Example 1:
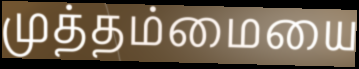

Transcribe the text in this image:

முத்தம்மையை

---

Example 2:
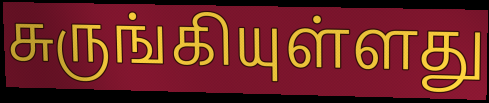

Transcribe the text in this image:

சுருங்கியுள்ளது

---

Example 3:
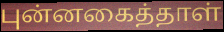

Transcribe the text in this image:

புன்னகைத்தாள்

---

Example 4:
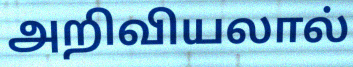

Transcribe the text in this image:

அறிவியலால்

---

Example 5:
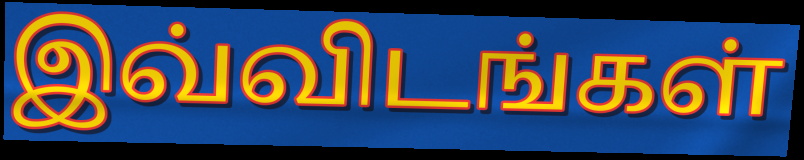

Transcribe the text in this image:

இவ்விடங்கள்